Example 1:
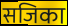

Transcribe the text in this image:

सजिका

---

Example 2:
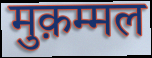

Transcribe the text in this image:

मुक़म्मल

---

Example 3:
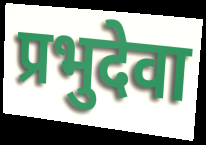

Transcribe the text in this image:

प्रभुदेवा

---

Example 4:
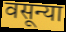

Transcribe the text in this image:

वसून्या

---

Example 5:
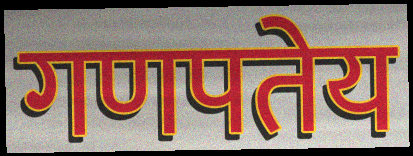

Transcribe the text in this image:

गणपतेय